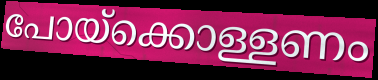
പോയ്ക്കൊള്ളണം